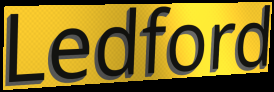
Ledford